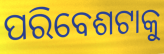
ପରିବେଶଟାକୁ